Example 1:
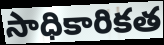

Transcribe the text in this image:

సాధికారికత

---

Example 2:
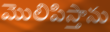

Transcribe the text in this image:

మొలిపిస్తాను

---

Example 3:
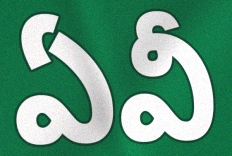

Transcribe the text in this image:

ఏవీ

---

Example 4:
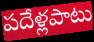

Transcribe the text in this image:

పదేళ్లపాటు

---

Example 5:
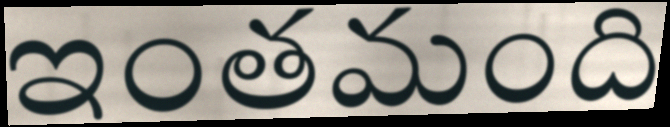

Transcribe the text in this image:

ఇంతమంది